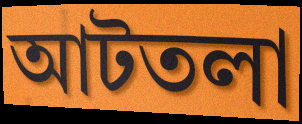
আটতলা